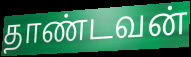
தாண்டவன்